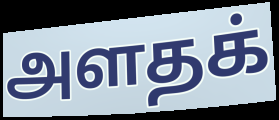
அளதக்